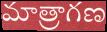
మాత్రాగణ